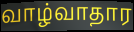
வாழ்வாதார